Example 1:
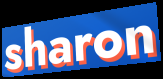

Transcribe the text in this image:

sharon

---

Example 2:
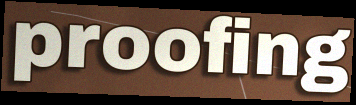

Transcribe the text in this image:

proofing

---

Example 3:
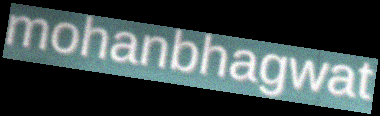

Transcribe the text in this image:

mohanbhagwat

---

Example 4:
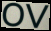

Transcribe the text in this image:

OV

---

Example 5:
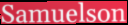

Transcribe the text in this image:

Samuelson